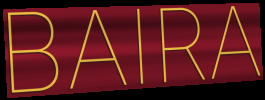
BAIRA